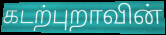
கடற்புறாவின்